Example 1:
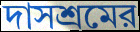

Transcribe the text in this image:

দাসশ্রমের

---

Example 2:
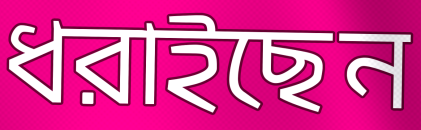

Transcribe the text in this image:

ধরাইছেন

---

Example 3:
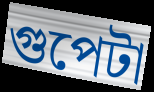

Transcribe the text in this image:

গুপেটা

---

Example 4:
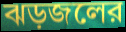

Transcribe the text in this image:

ঝড়জলের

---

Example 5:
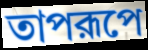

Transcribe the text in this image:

তাপরূপে